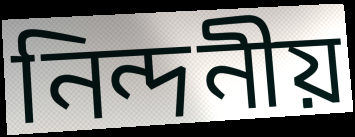
নিন্দনীয়